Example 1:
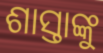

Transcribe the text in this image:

ଶାସ୍ତାଙ୍କୁ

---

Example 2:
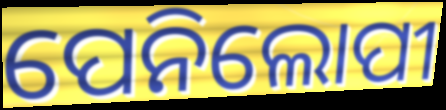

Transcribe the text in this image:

ପେନିଲୋପୀ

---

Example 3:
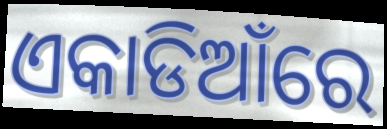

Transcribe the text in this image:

ଏକାଡିଆଁରେ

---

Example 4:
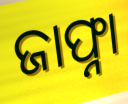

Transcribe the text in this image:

ଜାଫ୍ନା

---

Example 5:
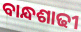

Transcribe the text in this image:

ବାନ୍ଧଶାଢୀ